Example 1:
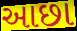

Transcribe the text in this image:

આછા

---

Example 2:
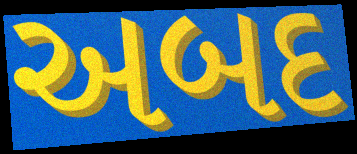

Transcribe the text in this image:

અબદ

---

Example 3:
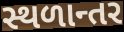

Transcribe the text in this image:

સ્થળાન્તર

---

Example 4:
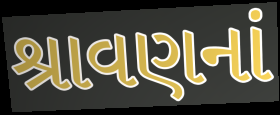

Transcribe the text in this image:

શ્રાવણનાં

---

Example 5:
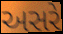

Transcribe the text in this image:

અસરે